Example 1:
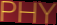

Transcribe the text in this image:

PHY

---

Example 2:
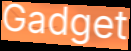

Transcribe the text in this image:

Gadget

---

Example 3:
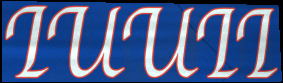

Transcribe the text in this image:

IUUII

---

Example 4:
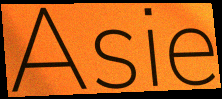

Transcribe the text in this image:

Asie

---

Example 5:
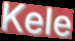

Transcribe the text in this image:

Kele